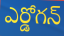
ఎర్డోగన్